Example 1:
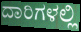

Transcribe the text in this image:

ದಾರಿಗಳಲ್ಲಿ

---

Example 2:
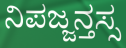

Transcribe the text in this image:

ನಿಪಜ್ಜನ್ತಸ್ಸ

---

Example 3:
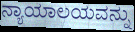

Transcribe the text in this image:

ನ್ಯಾಯಾಲಯವನ್ನು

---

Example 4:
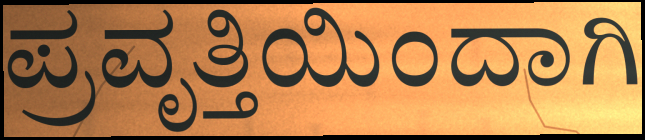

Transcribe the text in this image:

ಪ್ರವೃತ್ತಿಯಿಂದಾಗಿ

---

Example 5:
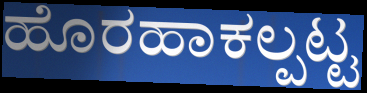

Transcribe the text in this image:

ಹೊರಹಾಕಲ್ಪಟ್ಟ